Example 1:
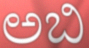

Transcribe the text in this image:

ಅಬಿ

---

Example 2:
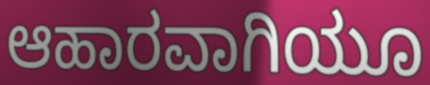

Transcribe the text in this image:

ಆಹಾರವಾಗಿಯೂ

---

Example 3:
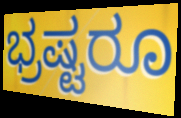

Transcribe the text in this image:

ಭ್ರಷ್ಟರೂ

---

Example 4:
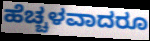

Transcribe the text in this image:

ಹೆಚ್ಚಳವಾದರೂ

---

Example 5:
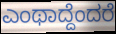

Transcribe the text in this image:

ಎಂಥಾದ್ದೆಂದರೆ